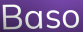
Baso